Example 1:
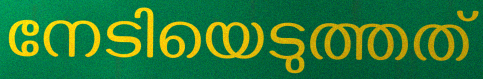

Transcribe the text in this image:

നേടിയെടുത്തത്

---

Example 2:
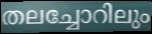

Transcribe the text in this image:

തലച്ചോറിലും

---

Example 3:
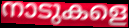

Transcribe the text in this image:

നാടുകളെ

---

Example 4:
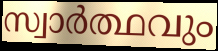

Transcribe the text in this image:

സ്വാർത്ഥവും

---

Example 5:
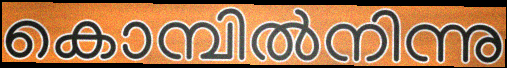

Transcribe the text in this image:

കൊമ്പിൽനിന്നു